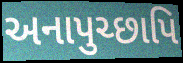
અનાપુચ્છાપિ